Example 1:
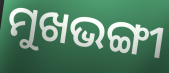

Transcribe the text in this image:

ମୁଖଭଙ୍ଗୀ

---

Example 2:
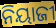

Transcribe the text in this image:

ନିୟାଜୀ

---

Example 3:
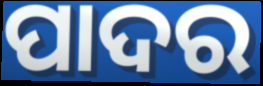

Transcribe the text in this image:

ପାଦର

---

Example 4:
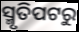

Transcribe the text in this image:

ସ୍ମୃତିପଟରୁ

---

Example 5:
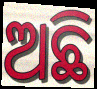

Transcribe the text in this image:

ଅଛି